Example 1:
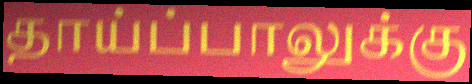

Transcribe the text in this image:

தாய்ப்பாலுக்கு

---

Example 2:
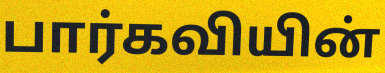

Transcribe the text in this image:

பார்கவியின்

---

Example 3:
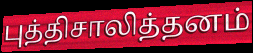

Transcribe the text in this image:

புத்திசாலித்தனம்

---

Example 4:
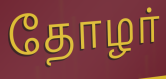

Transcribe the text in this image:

தோழர்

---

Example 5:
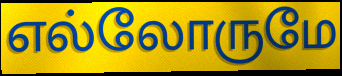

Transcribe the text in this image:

எல்லோருமே